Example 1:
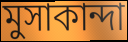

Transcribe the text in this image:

মুসাকান্দা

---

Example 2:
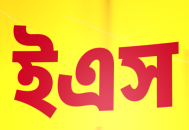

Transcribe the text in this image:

ইএস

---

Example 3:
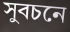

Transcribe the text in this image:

সুবচনে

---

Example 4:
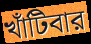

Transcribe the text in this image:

খাঁটিবার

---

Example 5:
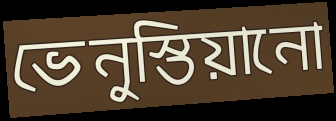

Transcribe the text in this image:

ভেনুস্তিয়ানো